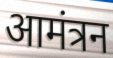
आमंत्रन